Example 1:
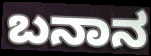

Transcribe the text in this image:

ಬನಾನ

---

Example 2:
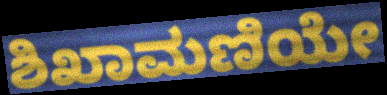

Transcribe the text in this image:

ಶಿಖಾಮಣಿಯೇ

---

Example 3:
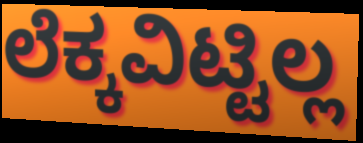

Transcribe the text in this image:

ಲೆಕ್ಕವಿಟ್ಟಿಲ್ಲ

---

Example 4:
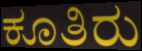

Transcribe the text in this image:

ಕೂತಿರು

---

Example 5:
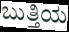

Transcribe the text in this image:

ಬುತ್ತಿಯ